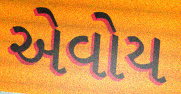
એવોય